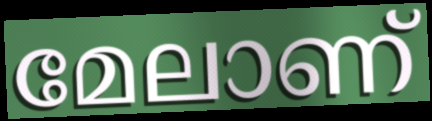
മേലാണ്